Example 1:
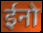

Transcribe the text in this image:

ईनो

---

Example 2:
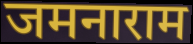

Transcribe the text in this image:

जमनाराम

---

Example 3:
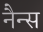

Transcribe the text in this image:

नैन्स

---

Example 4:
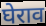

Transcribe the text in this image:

घेराव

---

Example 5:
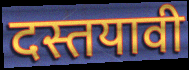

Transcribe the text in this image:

दस्तयावी